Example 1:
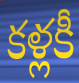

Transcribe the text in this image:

కళ్లకీ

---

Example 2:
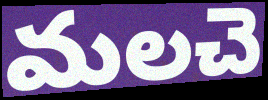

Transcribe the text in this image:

మలచె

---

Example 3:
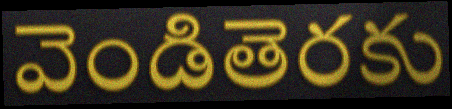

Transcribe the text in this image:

వెండితెరకు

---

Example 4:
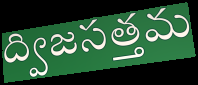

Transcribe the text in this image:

ద్విజసత్తమ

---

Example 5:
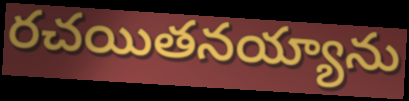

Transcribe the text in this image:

రచయితనయ్యాను